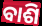
ବାଶି